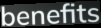
benefits